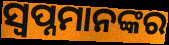
ସ୍ବପ୍ନମାନଙ୍କର